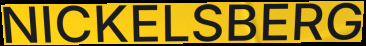
NICKELSBERG